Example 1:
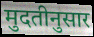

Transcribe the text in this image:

मुदतीनुसार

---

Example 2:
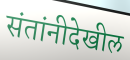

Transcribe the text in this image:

संतांनीदेखील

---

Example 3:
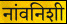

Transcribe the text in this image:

नांवनिशी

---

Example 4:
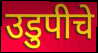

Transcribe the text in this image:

उडुपीचे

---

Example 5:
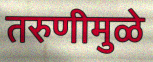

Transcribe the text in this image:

तरुणीमुळे